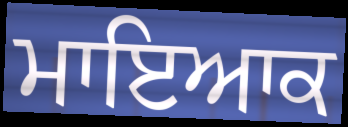
ਮਾਇਆਕ